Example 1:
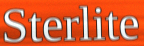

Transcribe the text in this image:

Sterlite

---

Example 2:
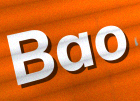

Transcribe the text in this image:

Bao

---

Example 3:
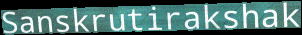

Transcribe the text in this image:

Sanskrutirakshak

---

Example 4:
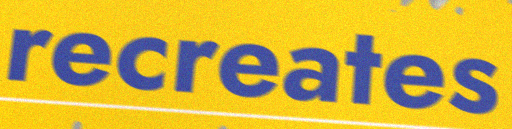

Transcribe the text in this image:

recreates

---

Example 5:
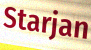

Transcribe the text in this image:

Starjan